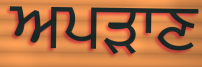
ਅਪੜਾਣ